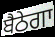
ਬੈਠੇਗਾ